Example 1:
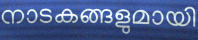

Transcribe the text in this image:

നാടകങ്ങളുമായി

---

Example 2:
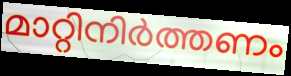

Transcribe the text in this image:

മാറ്റിനിർത്തണം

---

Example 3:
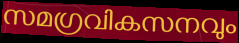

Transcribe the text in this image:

സമഗ്രവികസനവും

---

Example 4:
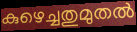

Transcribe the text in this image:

കുഴെച്ചതുമുതൽ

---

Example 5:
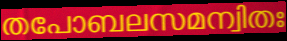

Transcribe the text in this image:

തപോബലസമന്വിതഃ